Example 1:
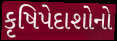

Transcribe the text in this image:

કૃષિપેદાશોનો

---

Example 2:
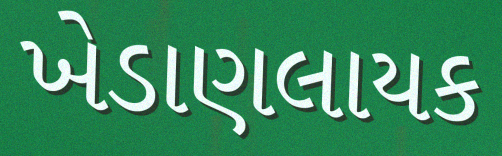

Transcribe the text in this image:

ખેડાણલાયક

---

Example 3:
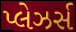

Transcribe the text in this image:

પ્લેઝર્સ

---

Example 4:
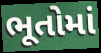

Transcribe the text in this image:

ભૂતોમાં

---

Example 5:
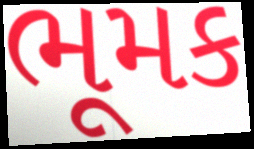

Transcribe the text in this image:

ભૂમક